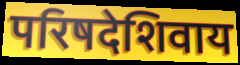
परिषदेशिवाय